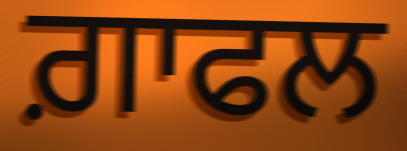
ਗ਼ਾਫਲ